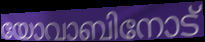
യോവാബിനോട്